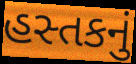
હસ્તકનું